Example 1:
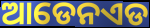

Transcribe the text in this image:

ଆଡେନଏଡ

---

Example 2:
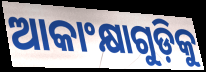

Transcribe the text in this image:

ଆକାଂକ୍ଷାଗୁଡ଼ିକୁ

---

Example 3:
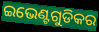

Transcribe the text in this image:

ଇଭେଣ୍ଟଗୁଡିକର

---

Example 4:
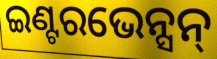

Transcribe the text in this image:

ଇଣ୍ଟରଭେନ୍ସନ୍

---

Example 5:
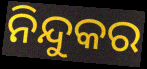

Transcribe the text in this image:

ନିନ୍ଦୁକର